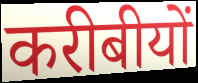
करीबीयों